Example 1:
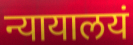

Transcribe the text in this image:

न्यायालयं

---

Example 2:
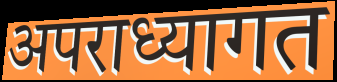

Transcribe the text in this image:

अपराध्यागत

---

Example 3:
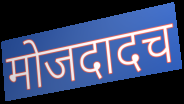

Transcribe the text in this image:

मोजदादच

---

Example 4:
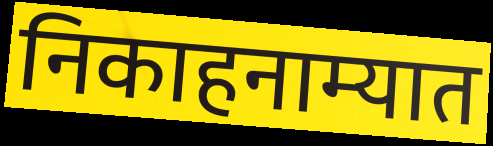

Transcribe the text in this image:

निकाहनाम्यात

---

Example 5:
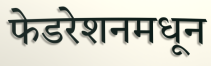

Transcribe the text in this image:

फेडरेशनमधून